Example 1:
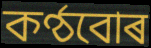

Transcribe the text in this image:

কণ্ঠবোৰ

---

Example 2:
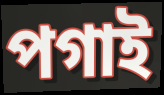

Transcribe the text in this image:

পগাই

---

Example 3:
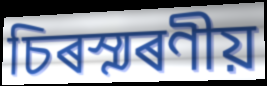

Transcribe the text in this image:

চিৰস্মৰণীয়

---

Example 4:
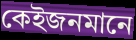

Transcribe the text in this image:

কেইজনমানে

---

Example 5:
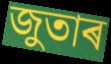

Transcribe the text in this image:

জুতাৰ